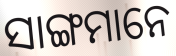
ସାଙ୍ଗମାନେ